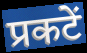
प्रकटें